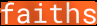
faiths